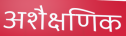
अशैक्षणिक